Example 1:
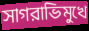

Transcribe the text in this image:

সাগরাভিমুখে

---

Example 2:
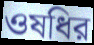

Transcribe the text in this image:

ওষধির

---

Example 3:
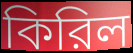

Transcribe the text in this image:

কিরিল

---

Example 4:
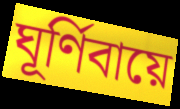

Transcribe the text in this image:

ঘূর্ণিবায়ে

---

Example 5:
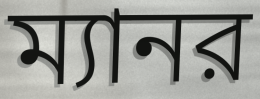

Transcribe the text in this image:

ম্যানর